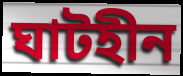
ঘাটহীন